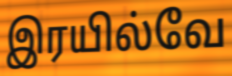
இரயில்வே